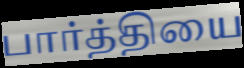
பார்த்தியை